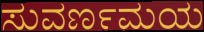
ಸುವರ್ಣಮಯ